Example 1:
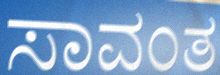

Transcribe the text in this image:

ಸಾವಂತ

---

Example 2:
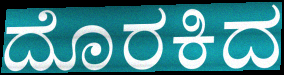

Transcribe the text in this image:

ದೊರಕಿದ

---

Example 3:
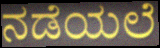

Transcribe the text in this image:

ನಡೆಯಲೆ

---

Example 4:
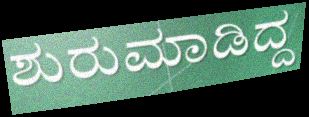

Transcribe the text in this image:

ಶುರುಮಾಡಿದ್ದ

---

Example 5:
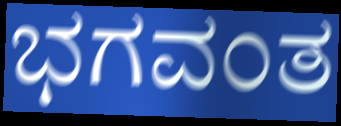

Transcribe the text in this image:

ಭಗವಂತ